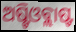
ଅଷ୍ଟିଓବ୍ଲାଷ୍ଟ